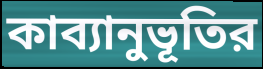
কাব্যানুভূতির